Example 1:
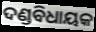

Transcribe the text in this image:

ଦଣ୍ଡବିଧାୟକ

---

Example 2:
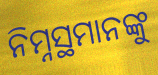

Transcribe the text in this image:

ନିମ୍ନସ୍ଥମାନଙ୍କୁ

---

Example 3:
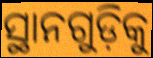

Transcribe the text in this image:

ସ୍ଥାନଗୁଡ଼ିକୁ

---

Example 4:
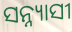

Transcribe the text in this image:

ସନ୍ନ୍ୟାସୀ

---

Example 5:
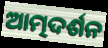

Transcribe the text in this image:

ଆତ୍ମଦର୍ଶନ